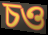
চও